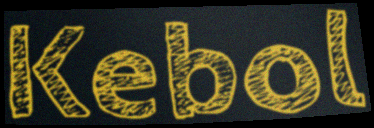
Kebol